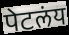
पेटलंय